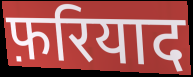
फ़रियाद